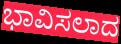
ಭಾವಿಸಲಾದ